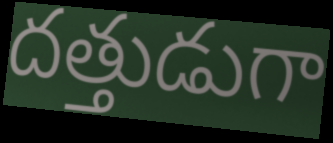
దత్తుడుగా